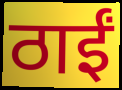
ठाईं